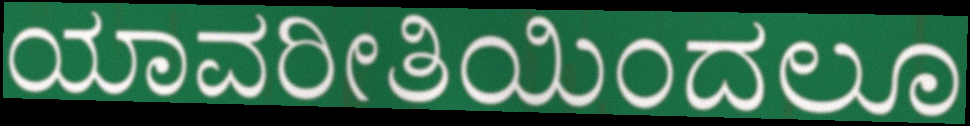
ಯಾವರೀತಿಯಿಂದಲೂ